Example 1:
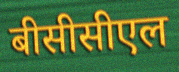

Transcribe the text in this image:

बीसीसीएल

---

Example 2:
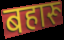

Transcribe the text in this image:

बहारू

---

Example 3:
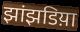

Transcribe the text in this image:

झांझडिय़ा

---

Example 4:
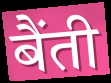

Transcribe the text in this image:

बैंती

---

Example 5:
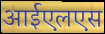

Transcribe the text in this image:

आईएलएस